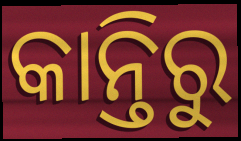
କାନ୍ତିରୁ